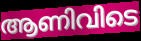
ആണിവിടെ